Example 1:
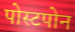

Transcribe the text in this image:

पोस्टपोन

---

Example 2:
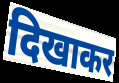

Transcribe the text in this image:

दिखाकर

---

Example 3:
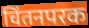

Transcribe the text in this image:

चिंतनपरक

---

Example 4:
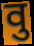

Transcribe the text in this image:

वु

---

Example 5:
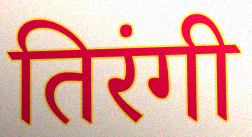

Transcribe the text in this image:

तिरंगी